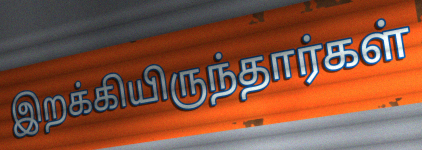
இறக்கியிருந்தார்கள்